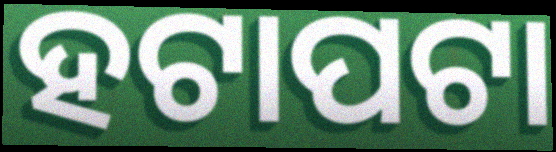
ହଟାପଟା